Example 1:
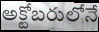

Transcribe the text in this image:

అక్టోబరులోనే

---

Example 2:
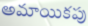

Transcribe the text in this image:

అమాయికపు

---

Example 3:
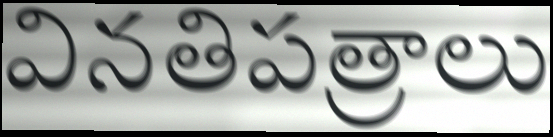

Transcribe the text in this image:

వినతిపత్రాలు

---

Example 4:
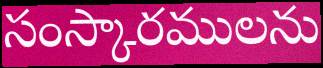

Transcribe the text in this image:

సంస్కారములను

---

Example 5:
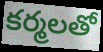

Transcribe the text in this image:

కర్మలతో